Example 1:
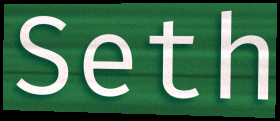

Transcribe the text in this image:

Seth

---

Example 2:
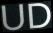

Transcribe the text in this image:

UD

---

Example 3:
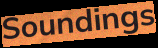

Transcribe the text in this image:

Soundings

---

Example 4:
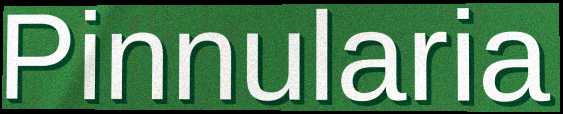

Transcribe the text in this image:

Pinnularia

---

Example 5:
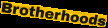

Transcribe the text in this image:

Brotherhoods